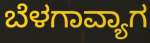
ಬೆಳಗಾವ್ಯಾಗ